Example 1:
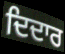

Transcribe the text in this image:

ਦਿਦਾਰ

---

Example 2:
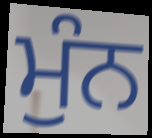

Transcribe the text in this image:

ਮੁੰਨ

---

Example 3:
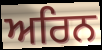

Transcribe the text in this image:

ਅਰਿਨ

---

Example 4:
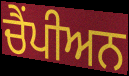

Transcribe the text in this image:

ਚੈਂਪੀਅਨ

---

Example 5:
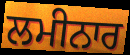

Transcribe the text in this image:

ਲਮੀਨਾਰ